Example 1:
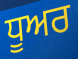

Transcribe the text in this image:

ਧੂਅਰ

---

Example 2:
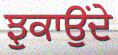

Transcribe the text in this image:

ਝੁਕਾਉਂਦੇ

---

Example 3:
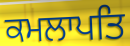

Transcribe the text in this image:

ਕਮਲਾਪਤਿ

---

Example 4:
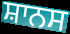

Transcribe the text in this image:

ਸ਼ਾਨਸ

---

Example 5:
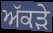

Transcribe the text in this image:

ਅੱਕੜੇ